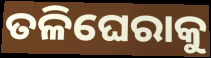
ତଳିଘେରାକୁ